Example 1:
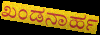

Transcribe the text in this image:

ಖಂಡನಾರ್ಹ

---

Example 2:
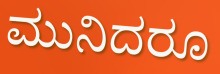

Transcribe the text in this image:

ಮುನಿದರೂ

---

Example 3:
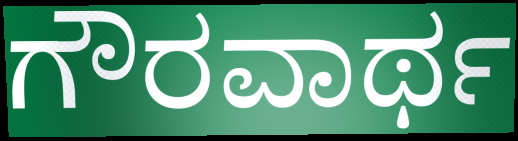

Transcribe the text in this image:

ಗೌರವಾರ್ಥ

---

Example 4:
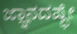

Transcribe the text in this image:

ಜ್ಞಾನದಷ್ಟೇ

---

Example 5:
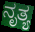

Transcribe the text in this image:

ನೃತ್ಯ